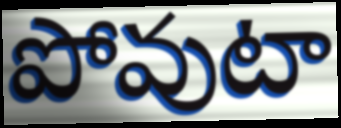
పోవుటా